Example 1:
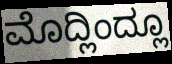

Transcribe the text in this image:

ಮೊದ್ಲಿಂದ್ಲೂ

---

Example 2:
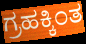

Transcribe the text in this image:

ಗ್ರಹಕ್ಕಿಂತ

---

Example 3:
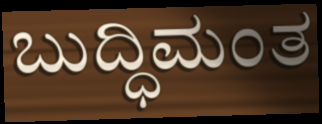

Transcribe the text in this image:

ಬುದ್ಧಿಮಂತ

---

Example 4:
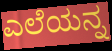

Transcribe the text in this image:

ಎಲೆಯನ್ನ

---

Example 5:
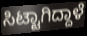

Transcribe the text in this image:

ಸಿಟ್ಟಾಗಿದ್ದಾಳೆ